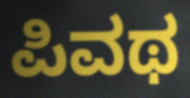
ಪಿವಥ